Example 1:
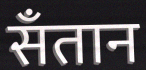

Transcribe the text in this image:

सँतान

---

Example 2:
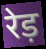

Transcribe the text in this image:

रेड़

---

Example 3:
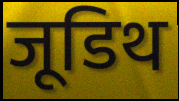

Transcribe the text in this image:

जूडिथ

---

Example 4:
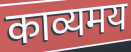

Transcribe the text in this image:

काव्यमय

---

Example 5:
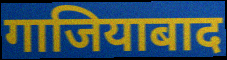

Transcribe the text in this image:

गाजियाबाद